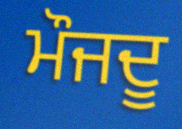
ਮੌਜਦੂ